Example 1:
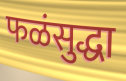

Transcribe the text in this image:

फळंसुद्धा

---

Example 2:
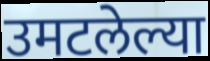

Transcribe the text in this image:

उमटलेल्या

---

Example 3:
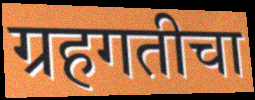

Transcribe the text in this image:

ग्रहगतीचा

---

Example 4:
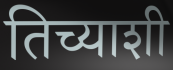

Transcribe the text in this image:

तिच्याशी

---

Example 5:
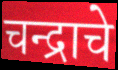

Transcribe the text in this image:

चन्द्राचे